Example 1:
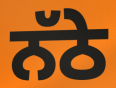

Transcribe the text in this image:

ਨੱਠੇ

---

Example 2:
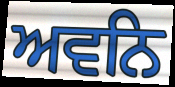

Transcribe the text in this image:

ਅਵਨਿ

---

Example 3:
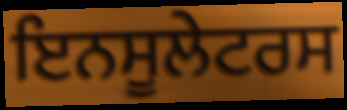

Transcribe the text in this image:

ਇਨਸੂਲੇਟਰਸ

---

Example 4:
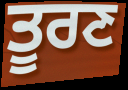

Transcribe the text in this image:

ਤੂਰਣ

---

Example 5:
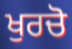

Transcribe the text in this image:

ਖੁਰਚੋ